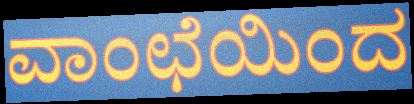
ವಾಂಛೆಯಿಂದ